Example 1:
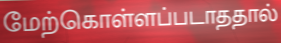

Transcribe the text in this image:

மேற்கொள்ளப்படாததால்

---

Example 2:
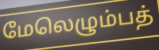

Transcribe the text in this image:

மேலெழும்பத்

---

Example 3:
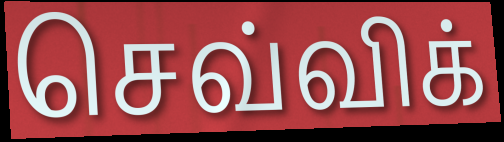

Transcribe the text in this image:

செவ்விக்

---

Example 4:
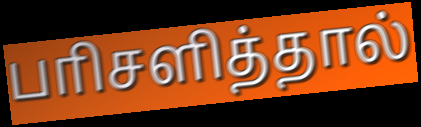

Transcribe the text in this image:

பரிசளித்தால்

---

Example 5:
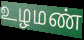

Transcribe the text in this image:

உழமண்